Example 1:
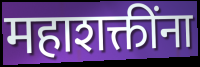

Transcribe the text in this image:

महाशक्तींना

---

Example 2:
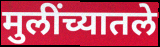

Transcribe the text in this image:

मुलींच्यातले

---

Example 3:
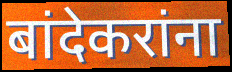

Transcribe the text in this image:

बांदेकरांना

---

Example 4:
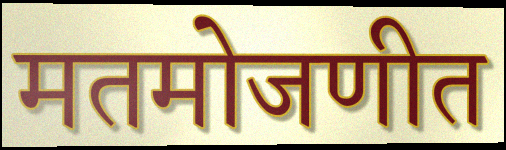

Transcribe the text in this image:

मतमोजणीत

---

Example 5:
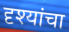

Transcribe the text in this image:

दृश्यांचा